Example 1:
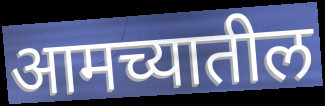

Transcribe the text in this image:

आमच्यातील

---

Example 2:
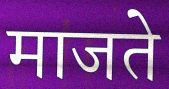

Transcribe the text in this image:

माजते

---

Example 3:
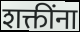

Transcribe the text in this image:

शक्तींना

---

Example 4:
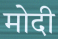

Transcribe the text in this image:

मोदी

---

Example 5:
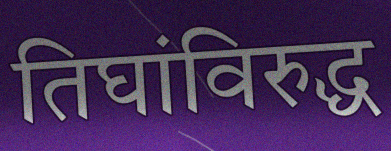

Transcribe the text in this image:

तिघांविरुद्ध